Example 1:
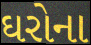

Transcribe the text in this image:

ઘરોના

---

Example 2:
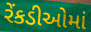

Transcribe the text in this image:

રેંકડીઓમાં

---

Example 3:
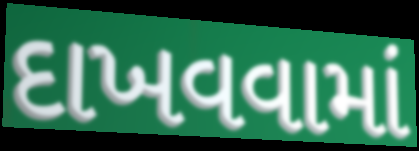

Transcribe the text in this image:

દાખવવામાં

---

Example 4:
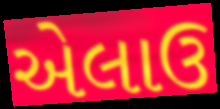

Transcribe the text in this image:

એલાઉ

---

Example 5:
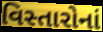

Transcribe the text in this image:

વિસ્તારોનાં